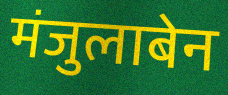
मंजुलाबेन